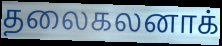
தலைகலனாக்